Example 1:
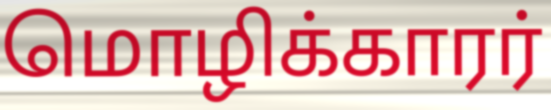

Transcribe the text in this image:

மொழிக்காரர்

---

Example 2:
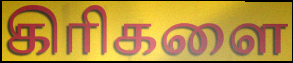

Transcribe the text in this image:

கிரிகளை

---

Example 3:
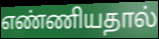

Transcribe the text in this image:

எண்ணியதால்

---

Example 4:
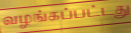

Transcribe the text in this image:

வழங்கப்பட்டது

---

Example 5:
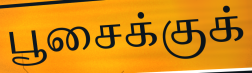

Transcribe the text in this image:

பூசைக்குக்